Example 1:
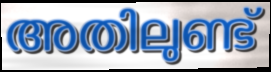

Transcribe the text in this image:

അതിലുണ്ട്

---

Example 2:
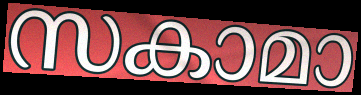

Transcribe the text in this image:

സകാമാ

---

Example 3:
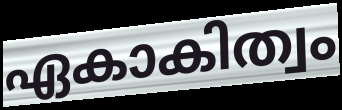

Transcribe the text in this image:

ഏകാകിത്വം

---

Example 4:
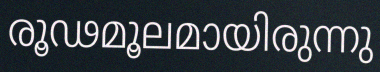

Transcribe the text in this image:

രൂഢമൂലമായിരുന്നു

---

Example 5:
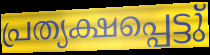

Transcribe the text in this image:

പ്രത്യക്ഷപ്പെട്ടു്